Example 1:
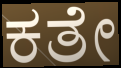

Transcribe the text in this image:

ಕತೇ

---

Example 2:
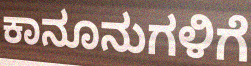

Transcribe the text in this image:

ಕಾನೂನುಗಳಿಗೆ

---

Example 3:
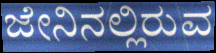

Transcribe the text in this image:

ಜೇನಿನಲ್ಲಿರುವ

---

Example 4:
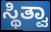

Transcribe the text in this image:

ಸ್ಥಿತ್ವಾ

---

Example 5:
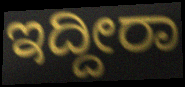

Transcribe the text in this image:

ಇದ್ದೀರಾ